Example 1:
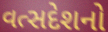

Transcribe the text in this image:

વત્સદેશનો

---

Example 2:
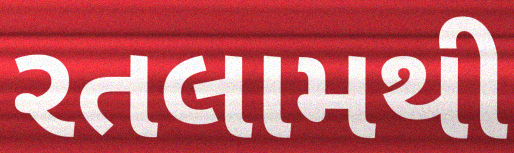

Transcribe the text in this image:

રતલામથી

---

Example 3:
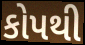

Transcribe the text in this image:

કોપથી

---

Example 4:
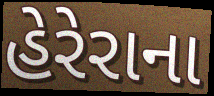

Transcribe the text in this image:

હેરેરાના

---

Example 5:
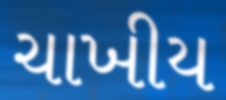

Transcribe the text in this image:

ચાખીય